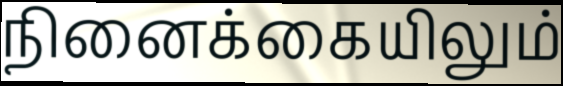
நினைக்கையிலும்